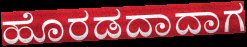
ಹೊರಡದಾದಾಗ